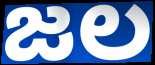
జల